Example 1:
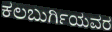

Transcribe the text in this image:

ಕಲಬುರ್ಗಿಯವರ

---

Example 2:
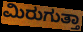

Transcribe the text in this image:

ಮಿರುಗುತ್ತಾ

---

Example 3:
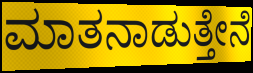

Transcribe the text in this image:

ಮಾತನಾಡುತ್ತೇನೆ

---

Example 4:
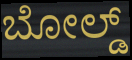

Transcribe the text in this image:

ಬೋಲ್ಡ್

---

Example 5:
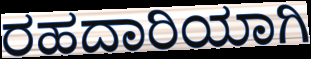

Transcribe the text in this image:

ರಹದಾರಿಯಾಗಿ